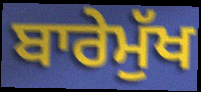
ਬਾਰੇਮੁੱਖ